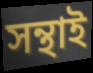
সন্থাই